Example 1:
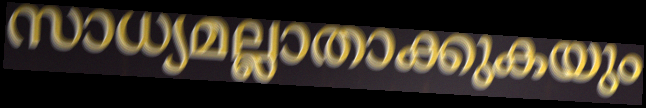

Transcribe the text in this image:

സാധ്യമല്ലാതാക്കുകയും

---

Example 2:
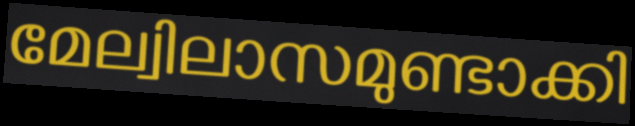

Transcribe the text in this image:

മേല്വിലാസമുണ്ടാക്കി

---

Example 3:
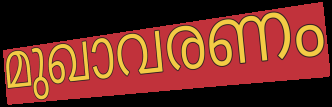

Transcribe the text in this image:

മുഖാവരണം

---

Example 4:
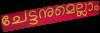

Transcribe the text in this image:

ചേട്ടനുമെല്ലാം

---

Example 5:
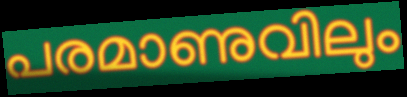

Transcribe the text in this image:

പരമാണുവിലും